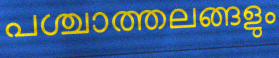
പശ്ചാത്തലങ്ങളും